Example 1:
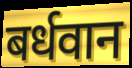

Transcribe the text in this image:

बर्धवान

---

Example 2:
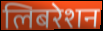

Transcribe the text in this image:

लिबरेशन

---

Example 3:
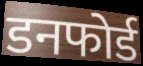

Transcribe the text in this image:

डनफोर्ड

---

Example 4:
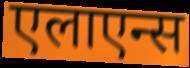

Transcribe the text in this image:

एलाएन्स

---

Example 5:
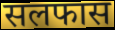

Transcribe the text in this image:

सलफास